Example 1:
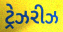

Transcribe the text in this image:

ટ્રેઝરીઝ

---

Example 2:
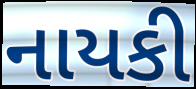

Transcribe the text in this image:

નાયકી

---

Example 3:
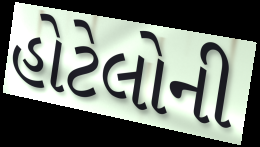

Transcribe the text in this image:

હોટેલોની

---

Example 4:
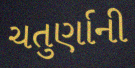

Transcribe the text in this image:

ચતુર્ણાની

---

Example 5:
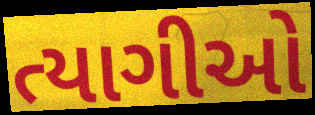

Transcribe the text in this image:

ત્યાગીઓ